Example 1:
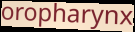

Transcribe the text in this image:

oropharynx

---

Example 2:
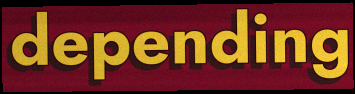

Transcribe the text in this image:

depending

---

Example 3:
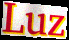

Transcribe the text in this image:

Luz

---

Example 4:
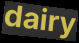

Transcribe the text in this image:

dairy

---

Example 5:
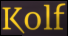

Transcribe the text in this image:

Kolf